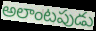
అలాంటపుడు